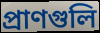
প্রাণগুলি